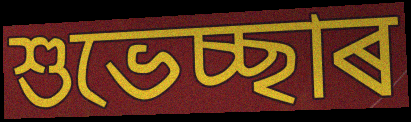
শুভেচ্ছাৰ